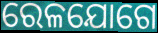
ରେଳଯୋଗେ